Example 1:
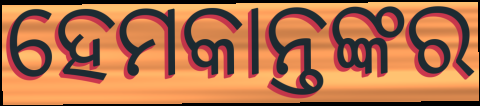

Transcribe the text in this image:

ହେମକାନ୍ତଙ୍କର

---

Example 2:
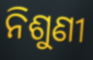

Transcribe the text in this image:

ନିଶୁଣୀ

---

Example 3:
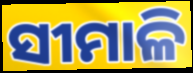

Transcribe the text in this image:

ସୀମାଳି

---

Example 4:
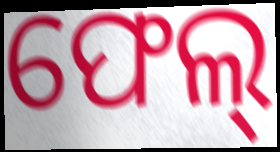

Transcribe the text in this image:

ଫେଲ୍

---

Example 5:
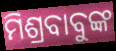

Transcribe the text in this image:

ମିଶ୍ରବାବୁଙ୍କ